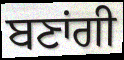
ਬਣਾਂਗੀ